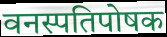
वनस्पतिपोषक